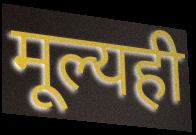
मूल्यही